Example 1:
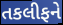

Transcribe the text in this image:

તકલીફને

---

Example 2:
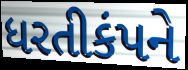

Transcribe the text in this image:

ધરતીકંપને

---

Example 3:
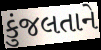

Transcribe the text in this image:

કુંજલતાને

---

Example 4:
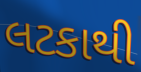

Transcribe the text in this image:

લટકાથી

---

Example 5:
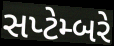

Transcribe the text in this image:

સપ્ટેમ્બરે